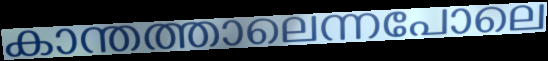
കാന്തത്താലെന്നപോലെ